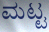
ಮಟ್ಟ